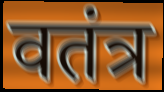
वतंत्र